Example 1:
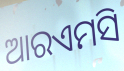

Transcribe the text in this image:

ଆରଏମସି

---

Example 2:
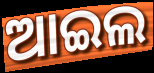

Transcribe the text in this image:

ଆଇଲ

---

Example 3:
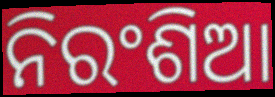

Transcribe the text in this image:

ନିରଂଶିଆ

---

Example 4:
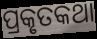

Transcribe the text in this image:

ପ୍ରକୃତକଥା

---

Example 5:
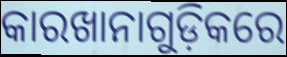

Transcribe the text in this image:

କାରଖାନାଗୁଡ଼ିକରେ